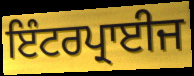
ਇੰਟਰਪ੍ਰਾਈਜ